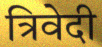
त्रिवेदी